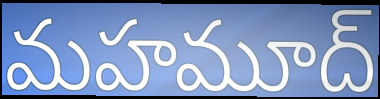
మహమూద్